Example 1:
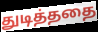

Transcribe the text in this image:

துடித்ததை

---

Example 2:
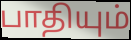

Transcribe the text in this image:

பாதியும்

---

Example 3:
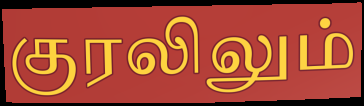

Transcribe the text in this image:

குரலிலும்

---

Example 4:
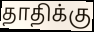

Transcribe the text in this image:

தாதிக்கு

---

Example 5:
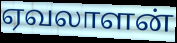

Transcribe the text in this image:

ஏவலாளன்